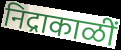
निद्राकाळीं